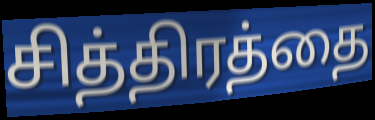
சித்திரத்தை